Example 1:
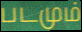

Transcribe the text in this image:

படமும்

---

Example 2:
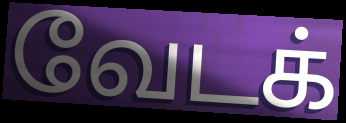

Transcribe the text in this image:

வேடக்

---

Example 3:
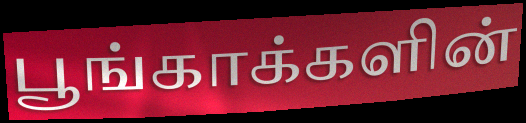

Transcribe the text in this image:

பூங்காக்களின்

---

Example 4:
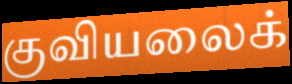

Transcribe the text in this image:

குவியலைக்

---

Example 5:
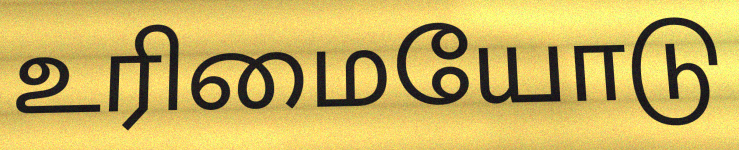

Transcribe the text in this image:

உரிமையோடு